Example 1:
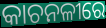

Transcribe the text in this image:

କାଚନଳୀରେ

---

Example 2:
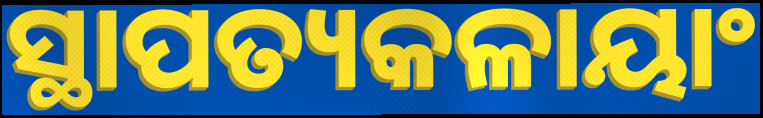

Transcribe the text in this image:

ସ୍ଥାପତ୍ୟକଳାୟାଂ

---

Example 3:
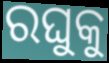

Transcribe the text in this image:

ରଘୁକୁ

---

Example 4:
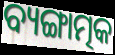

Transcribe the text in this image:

ବ୍ୟଙ୍ଗାତ୍ମକ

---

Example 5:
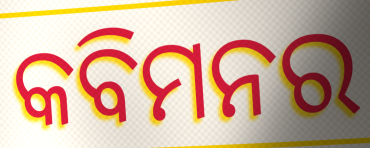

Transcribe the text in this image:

କବିମନର